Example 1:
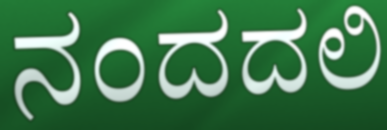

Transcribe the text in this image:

ನಂದದಲಿ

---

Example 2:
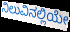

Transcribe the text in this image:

ನಿಲುವಿನಲ್ಲಿಯೇ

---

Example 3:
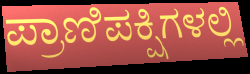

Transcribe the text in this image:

ಪ್ರಾಣಿಪಕ್ಷಿಗಳಲ್ಲಿ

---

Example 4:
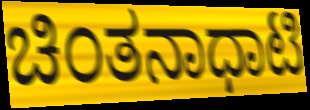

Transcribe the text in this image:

ಚಿಂತನಾಧಾಟಿ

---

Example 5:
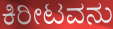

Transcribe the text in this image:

ಕಿರೀಟವನು